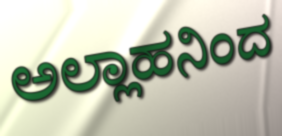
ಅಲ್ಲಾಹನಿಂದ